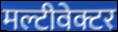
मल्टीवेक्टर